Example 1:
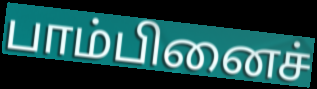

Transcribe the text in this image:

பாம்பினைச்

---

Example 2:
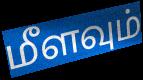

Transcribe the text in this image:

மீளவும்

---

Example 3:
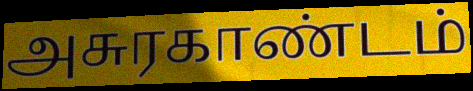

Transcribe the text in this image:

அசுரகாண்டம்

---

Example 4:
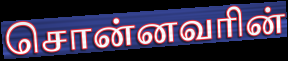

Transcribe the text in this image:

சொன்னவரின்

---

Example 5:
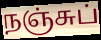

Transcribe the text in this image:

நஞ்சுப்